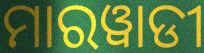
ମାରୱାଡୀ